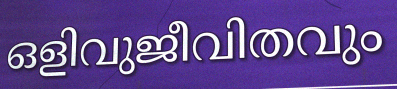
ഒളിവുജീവിതവും